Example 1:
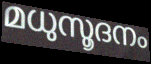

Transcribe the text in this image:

മധുസൂദനം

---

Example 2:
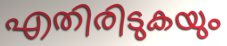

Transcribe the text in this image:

എതിരിടുകയും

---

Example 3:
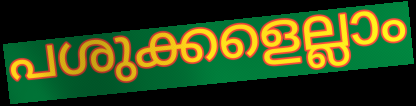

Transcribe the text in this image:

പശുക്കളെല്ലാം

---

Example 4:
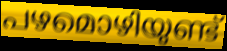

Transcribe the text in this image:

പഴമൊഴിയുണ്ട്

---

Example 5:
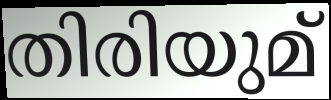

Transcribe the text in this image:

തിരിയുമ്